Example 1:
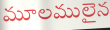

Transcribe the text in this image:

మూలములైన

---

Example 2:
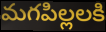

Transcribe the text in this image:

మగపిల్లలకి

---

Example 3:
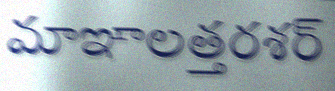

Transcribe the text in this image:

మాఞాలత్తరశర్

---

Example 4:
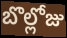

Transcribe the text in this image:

బొల్లోజు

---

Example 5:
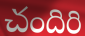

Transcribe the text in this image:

చందిరి